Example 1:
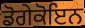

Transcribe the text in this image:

ਡੋਗੇਕੋਇਨ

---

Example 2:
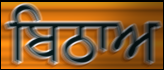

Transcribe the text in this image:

ਬਿਠਾਅ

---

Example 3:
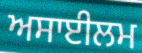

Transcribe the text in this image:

ਅਸਾਈਲਮ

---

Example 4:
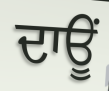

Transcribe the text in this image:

ਦਾਊਂ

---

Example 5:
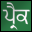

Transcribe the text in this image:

ਪ੍ਰੈਕ